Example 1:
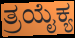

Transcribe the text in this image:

ತ್ರಯೈಕ್ಯ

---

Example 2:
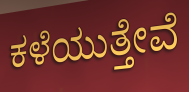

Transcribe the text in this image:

ಕಳೆಯುತ್ತೇವೆ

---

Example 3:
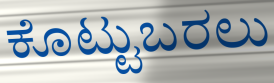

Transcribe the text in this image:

ಕೊಟ್ಟುಬರಲು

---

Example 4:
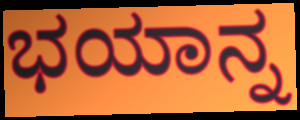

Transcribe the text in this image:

ಭಯಾನ್ನ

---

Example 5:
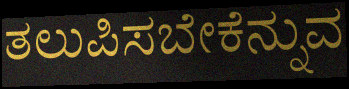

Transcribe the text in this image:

ತಲುಪಿಸಬೇಕೆನ್ನುವ